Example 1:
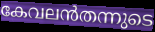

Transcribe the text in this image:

കേവലൻതന്നുടെ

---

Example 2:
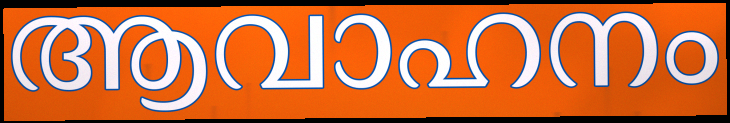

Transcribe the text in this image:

ആവാഹനം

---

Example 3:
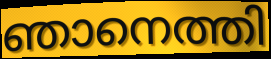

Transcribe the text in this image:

ഞാനെത്തി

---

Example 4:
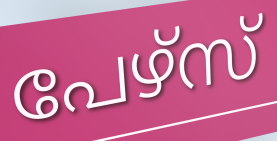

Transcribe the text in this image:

പേഴ്സ്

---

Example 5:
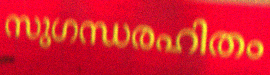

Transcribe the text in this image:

സുഗന്ധരഹിതം